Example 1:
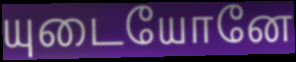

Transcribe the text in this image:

யுடையோனே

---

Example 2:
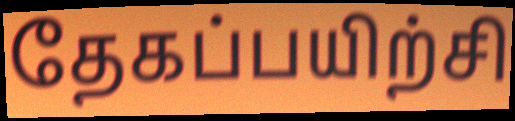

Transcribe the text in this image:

தேகப்பயிற்சி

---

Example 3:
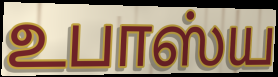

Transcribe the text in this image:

உபாஸ்ய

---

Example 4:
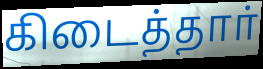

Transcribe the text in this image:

கிடைத்தார்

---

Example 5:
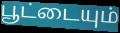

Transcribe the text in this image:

பூட்டையும்